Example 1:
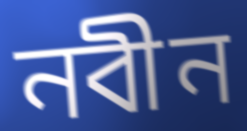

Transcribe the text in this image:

নবীন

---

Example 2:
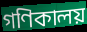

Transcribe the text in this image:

গণিকালয়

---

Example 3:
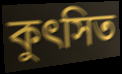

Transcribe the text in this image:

কুৎসিত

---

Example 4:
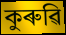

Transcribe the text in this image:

কুৰুৱি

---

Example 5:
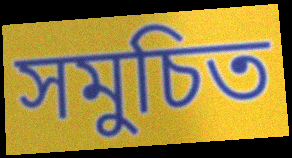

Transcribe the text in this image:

সমুচিত